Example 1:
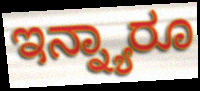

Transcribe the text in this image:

ಇನ್ನ್ಯಾರೂ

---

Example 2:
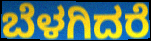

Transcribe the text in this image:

ಬೆಳಗಿದರೆ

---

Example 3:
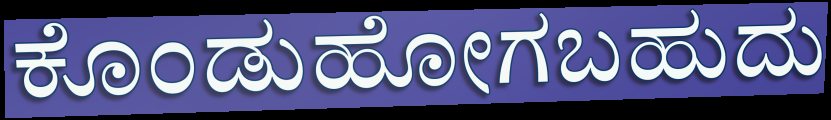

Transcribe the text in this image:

ಕೊಂಡುಹೋಗಬಹುದು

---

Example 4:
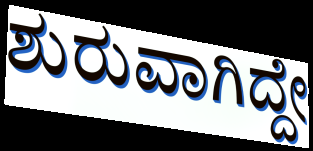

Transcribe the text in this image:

ಶುರುವಾಗಿದ್ದೇ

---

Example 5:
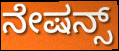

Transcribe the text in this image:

ನೇಷನ್ಸ್